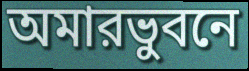
অমারভুবনে